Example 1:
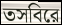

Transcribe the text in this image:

তসবিরে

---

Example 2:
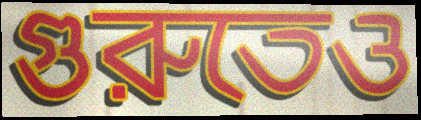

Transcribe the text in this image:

গুরুতেও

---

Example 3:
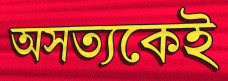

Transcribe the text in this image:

অসত্যকেই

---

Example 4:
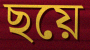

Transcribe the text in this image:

ছয়ে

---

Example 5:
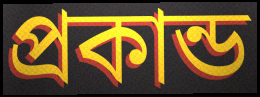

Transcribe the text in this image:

প্রকান্ড